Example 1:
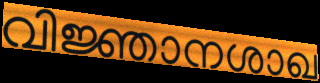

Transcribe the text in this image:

വിജ്ഞാനശാഖ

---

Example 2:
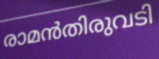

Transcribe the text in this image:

രാമൻതിരുവടി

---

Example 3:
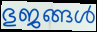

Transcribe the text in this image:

ഭുജങ്ങൾ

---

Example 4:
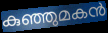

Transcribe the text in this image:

കുഞ്ഞുമകൻ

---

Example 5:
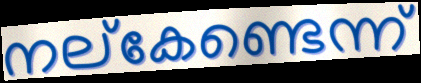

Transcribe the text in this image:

നല്കേണ്ടെന്ന്